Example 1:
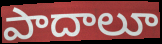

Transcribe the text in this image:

పాదాలూ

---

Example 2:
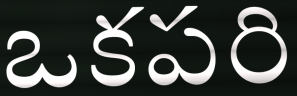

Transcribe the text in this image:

ఒకపరి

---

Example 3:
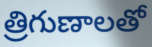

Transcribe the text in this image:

త్రిగుణాలతో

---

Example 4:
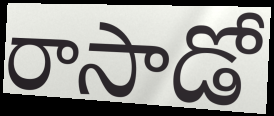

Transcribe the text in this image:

రాసాడో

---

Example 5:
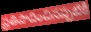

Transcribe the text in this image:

ప్రతిపాదించినప్పటికీ